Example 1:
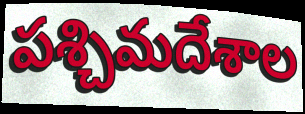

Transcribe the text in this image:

పశ్చిమదేశాల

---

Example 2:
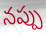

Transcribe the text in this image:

నప్పు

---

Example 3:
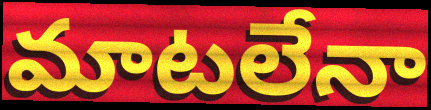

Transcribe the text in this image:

మాటలేనా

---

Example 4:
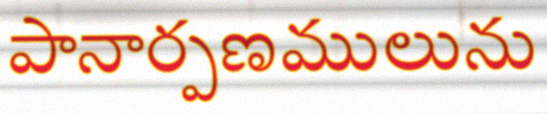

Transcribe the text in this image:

పానార్పణములును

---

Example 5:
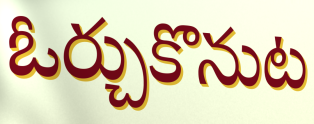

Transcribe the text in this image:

ఓర్చుకొనుట